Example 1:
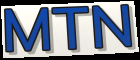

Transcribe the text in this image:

MTN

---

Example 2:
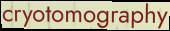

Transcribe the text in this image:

cryotomography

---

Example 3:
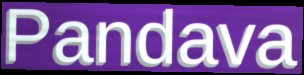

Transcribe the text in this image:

Pandava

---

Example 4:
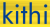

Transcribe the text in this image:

kithi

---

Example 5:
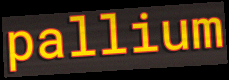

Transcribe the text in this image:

pallium